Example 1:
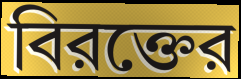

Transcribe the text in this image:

বিরক্তের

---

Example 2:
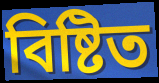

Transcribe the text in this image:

বিষ্টিত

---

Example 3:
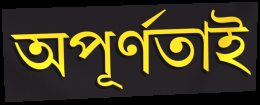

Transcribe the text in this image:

অপূর্ণতাই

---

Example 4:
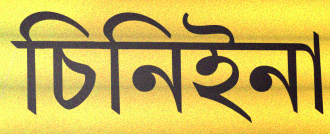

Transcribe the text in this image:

চিনিইনা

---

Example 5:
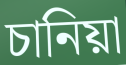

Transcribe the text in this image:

চানিয়া